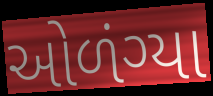
ઓળંગ્યા